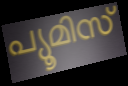
പ്യൂമിസ്